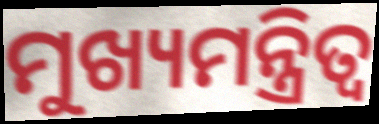
ମୁଖ୍ୟମନ୍ତ୍ରିତ୍ୱ